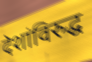
देशांविरुद्ध